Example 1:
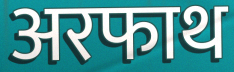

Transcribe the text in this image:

अरफाथ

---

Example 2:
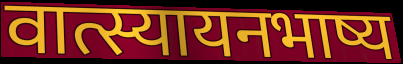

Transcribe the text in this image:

वात्स्यायनभाष्य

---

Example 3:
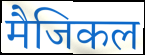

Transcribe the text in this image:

मैजिकल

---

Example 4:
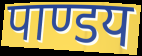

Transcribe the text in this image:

पाण्डय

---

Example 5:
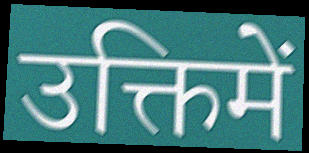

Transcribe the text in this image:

उक्तिमें